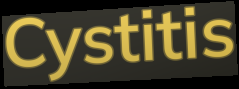
Cystitis